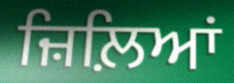
ਜ਼ਿਲ਼ਿਆਂ